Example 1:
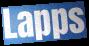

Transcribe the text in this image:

Lapps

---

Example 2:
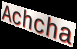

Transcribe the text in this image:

Achcha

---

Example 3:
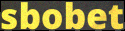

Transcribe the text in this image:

sbobet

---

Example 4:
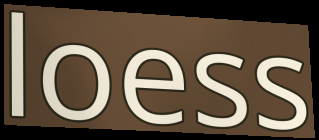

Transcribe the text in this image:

loess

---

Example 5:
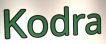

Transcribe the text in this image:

Kodra